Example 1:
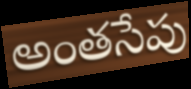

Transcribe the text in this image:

అంతసేపు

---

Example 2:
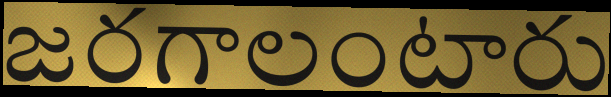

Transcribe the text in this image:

జరగాలంటారు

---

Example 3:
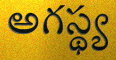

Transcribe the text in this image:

అగస్థ్య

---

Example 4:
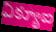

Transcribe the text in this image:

ఏక్యూఐ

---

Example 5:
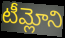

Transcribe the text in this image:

టీమ్లోని